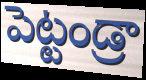
పెట్టండ్రా